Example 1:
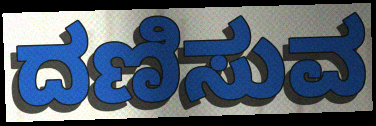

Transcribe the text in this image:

ದಣಿಸುವ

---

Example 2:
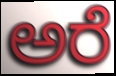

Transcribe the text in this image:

ಅರೆ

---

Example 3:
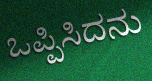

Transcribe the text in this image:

ಒಪ್ಪಿಸಿದನು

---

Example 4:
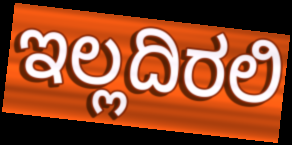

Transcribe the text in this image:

ಇಲ್ಲದಿರಲಿ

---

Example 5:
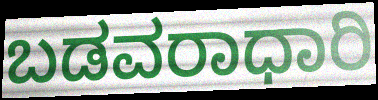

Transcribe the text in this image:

ಬಡವರಾಧಾರಿ